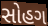
સોહગ